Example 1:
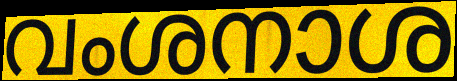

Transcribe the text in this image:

വംശനാശ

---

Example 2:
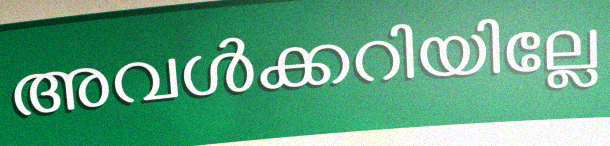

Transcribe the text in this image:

അവൾക്കറിയില്ലേ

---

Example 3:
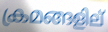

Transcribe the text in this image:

ക്രമങ്ങളില്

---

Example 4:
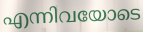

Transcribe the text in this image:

എന്നിവയോടെ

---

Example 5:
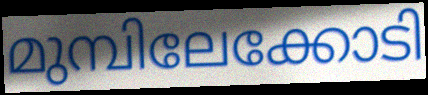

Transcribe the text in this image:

മുമ്പിലേക്കോടി